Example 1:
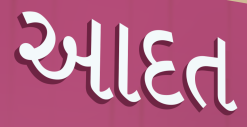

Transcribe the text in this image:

આદત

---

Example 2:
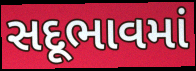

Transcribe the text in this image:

સદૂભાવમાં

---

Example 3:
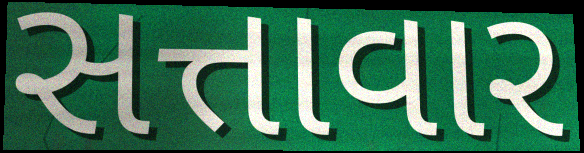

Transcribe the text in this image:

સત્તાવાર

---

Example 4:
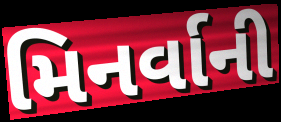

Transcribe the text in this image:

મિનર્વાની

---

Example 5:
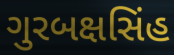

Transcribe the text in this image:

ગુરબક્ષસિંહ